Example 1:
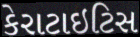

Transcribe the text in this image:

કેરાટાઇટિસ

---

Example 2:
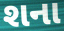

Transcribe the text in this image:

શના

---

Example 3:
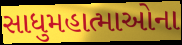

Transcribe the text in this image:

સાધુમહાત્માઓના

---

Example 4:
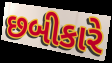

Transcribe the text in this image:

છબીકારે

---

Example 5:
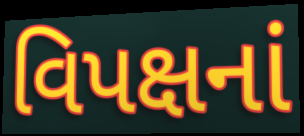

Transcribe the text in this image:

વિપક્ષનાં